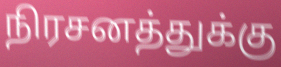
நிரசனத்துக்கு